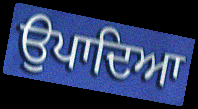
ਉਪਾਦਿਆ